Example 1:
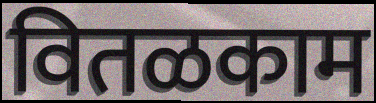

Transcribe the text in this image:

वितळकाम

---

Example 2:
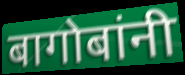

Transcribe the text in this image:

बागोबांनी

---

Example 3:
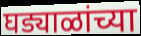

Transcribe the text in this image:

घड्याळांच्या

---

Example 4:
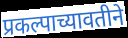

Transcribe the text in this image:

प्रकल्पाच्यावतीने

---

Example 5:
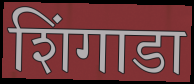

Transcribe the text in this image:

शिंगाडा